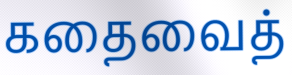
கதைவைத்